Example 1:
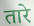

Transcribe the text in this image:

तारे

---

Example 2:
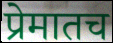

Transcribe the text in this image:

प्रेमातच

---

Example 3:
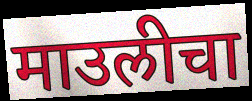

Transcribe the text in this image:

माउलीचा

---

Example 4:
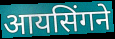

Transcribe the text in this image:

आयसिंगने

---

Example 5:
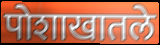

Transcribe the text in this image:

पोशाखातले